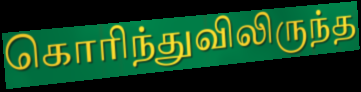
கொரிந்துவிலிருந்த